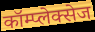
कॉम्प्लेक्सेज